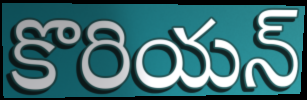
కొరియన్